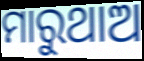
ମାରୁଥାଅ